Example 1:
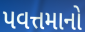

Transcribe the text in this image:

પવત્તમાનો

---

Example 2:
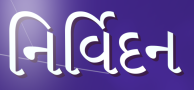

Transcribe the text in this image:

નિર્વિદન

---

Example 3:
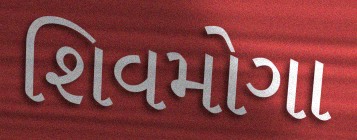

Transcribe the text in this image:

શિવમોગા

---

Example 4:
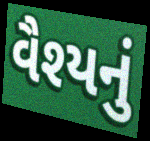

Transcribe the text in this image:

વૈશ્યનું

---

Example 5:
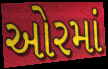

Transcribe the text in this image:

ઓરમાં